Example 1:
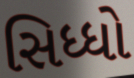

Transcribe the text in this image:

સિધ્ધો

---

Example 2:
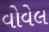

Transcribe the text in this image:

વોવેલ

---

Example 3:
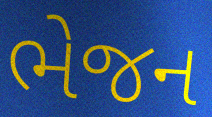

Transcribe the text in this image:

ભેજન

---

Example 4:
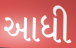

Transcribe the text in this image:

આધી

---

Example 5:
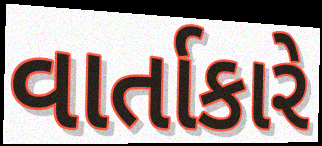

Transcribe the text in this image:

વાર્તાકારે